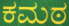
ಕಮಠ